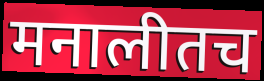
मनालीतच